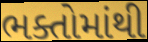
ભક્તોમાંથી